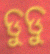
ଡୁଡୁ